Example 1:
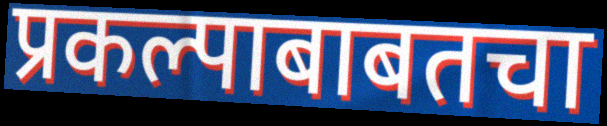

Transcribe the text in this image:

प्रकल्पाबाबतचा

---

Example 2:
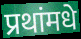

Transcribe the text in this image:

प्रथांमधे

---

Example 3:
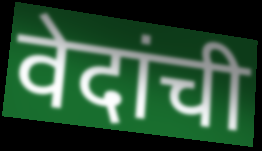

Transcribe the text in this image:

वेदांची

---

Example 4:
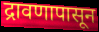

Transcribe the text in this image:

द्रावणापासून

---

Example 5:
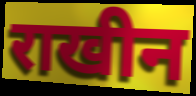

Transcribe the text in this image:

राखीन